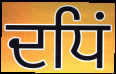
ਦਧਿਂ